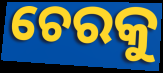
ଚେରକୁ